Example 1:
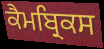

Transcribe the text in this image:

ਕੈਮਬ੍ਰਿਕਸ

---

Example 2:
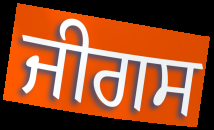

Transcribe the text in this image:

ਜੀਗਸ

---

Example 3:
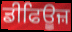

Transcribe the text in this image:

ਡੀਫਿਊਜ਼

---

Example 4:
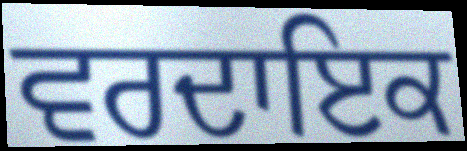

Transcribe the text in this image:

ਵਰਦਾਇਕ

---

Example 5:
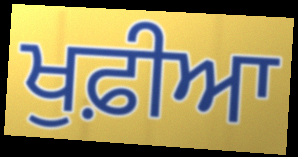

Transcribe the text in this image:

ਖੁਫ਼ੀਆ